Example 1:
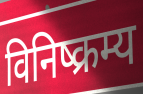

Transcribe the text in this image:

विनिष्क्रम्य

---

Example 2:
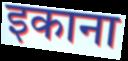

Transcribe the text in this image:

इकाना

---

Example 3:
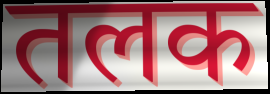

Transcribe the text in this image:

तलक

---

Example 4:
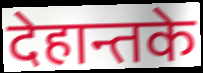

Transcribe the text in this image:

देहान्तके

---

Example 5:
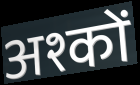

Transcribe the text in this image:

अश्कों